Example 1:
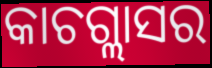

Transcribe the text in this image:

କାଚଗ୍ଲାସର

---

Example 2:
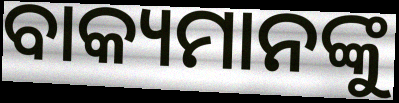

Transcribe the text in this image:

ବାକ୍ୟମାନଙ୍କୁ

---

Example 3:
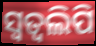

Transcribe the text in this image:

ସ୍ୱତ୍ୱଲିପି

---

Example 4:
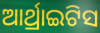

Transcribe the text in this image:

ଆର୍ଥ୍ରାଇଟିସ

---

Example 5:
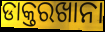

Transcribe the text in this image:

ଡାକ୍ତରଖାନା